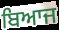
ਬਿਆਜ